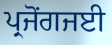
ਪ੍ਰਜੋਂਗਜਈ